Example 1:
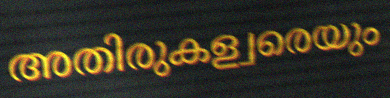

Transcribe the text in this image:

അതിരുകള്വരെയും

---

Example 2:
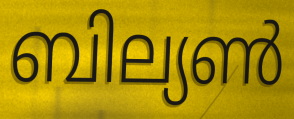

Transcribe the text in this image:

ബില്യൺ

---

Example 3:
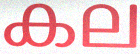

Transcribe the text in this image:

കല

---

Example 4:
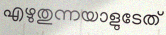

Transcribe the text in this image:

എഴുതുന്നയാളുടേത്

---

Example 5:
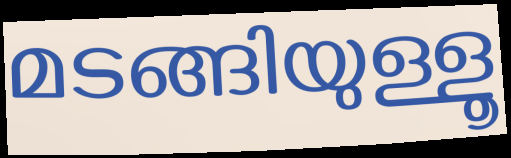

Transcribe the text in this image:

മടങ്ങിയുള്ളൂ